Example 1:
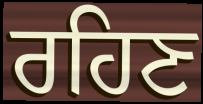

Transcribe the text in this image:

ਰਹਿਣ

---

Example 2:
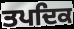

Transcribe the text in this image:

ਤਪਦਿਕ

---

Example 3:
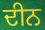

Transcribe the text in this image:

ਦੀਨ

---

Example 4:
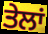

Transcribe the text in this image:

ਤੇਲਾਂ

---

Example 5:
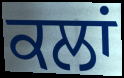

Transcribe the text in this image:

ਕਲਾਂ